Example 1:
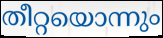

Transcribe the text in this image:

തീറ്റയൊന്നും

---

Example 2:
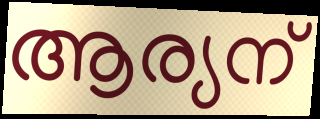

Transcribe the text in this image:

ആര്യന്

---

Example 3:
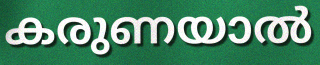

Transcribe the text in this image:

കരുണയാൽ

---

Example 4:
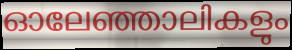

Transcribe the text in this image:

ഓലേഞ്ഞാലികളും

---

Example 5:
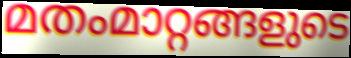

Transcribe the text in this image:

മതംമാറ്റങ്ങളുടെ